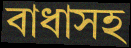
বাধাসহ